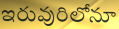
ఇరువురిలోనూ